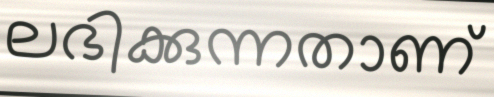
ലഭിക്കുന്നതാണ്